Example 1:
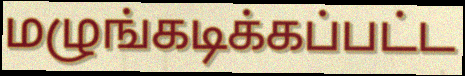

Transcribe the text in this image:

மழுங்கடிக்கப்பட்ட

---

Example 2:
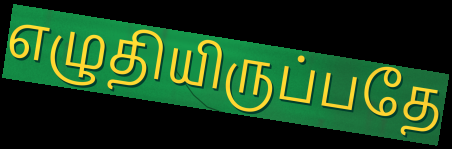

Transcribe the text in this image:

எழுதியிருப்பதே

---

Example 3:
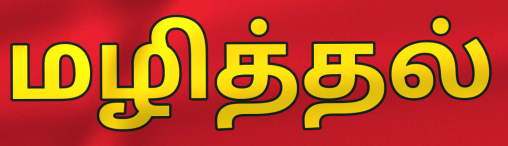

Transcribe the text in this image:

மழித்தல்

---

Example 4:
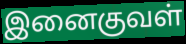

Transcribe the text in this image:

இனைகுவள்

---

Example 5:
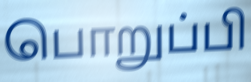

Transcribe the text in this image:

பொறுப்பி